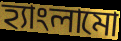
হ্যাংলামো